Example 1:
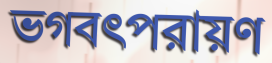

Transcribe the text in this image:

ভগবৎপরায়ণ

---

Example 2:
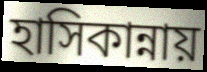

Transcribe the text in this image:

হাসিকান্নায়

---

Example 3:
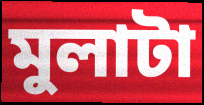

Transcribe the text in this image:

মুলাটা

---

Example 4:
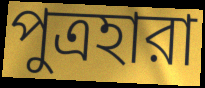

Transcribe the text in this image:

পুত্রহারা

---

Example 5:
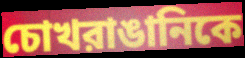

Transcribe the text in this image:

চোখরাঙানিকে